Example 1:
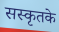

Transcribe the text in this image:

सस्कृतके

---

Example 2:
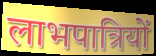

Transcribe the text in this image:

लाभपात्रियों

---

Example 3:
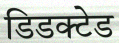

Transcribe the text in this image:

डिडक्टेड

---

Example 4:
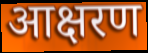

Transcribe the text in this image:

आक्षरण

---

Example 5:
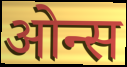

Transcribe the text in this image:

ओन्स